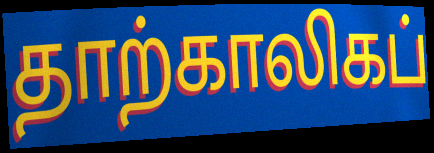
தாற்காலிகப்